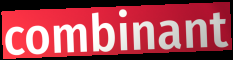
combinant